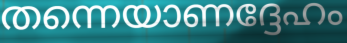
തന്നെയാണദ്ദേഹം